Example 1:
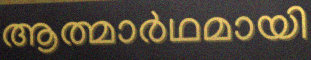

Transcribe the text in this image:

ആത്മാർഥമായി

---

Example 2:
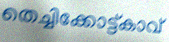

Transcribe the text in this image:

തെച്ചിക്കോട്ട്കാവ്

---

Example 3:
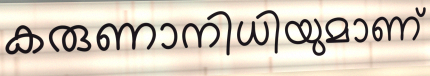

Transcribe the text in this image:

കരുണാനിധിയുമാണ്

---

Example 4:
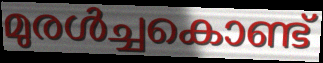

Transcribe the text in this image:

മുരൾച്ചകൊണ്ട്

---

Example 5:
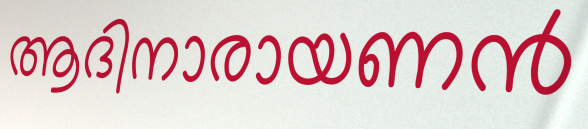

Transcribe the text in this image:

ആദിനാരായണൻ